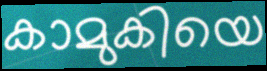
കാമുകിയെ